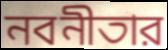
নবনীতার